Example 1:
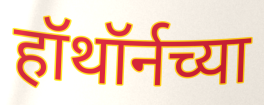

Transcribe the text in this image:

हॉथॉर्नच्या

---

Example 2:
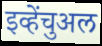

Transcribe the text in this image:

इव्हेंचुअल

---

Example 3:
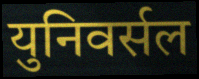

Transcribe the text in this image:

युनिवर्सल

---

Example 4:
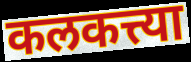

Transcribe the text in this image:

कलकत्त्या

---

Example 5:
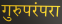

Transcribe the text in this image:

गुरुपरंपरा